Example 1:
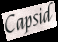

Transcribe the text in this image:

Capsid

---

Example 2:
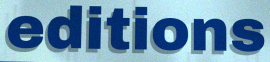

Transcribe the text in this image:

editions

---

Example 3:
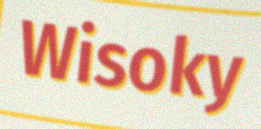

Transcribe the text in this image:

Wisoky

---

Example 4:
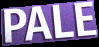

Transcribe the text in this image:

PALE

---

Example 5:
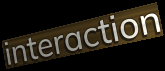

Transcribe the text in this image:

interaction